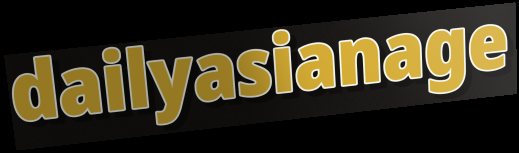
dailyasianage